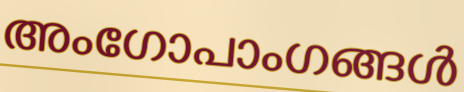
അംഗോപാംഗങ്ങൾ